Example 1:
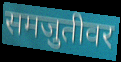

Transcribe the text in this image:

समजुतीवर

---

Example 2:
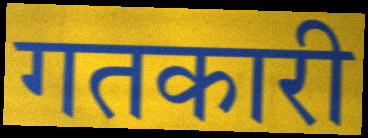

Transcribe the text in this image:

गतकारी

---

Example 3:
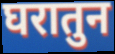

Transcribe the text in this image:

घरातुन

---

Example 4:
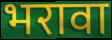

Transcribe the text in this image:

भरावा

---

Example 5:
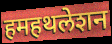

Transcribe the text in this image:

हमहथलेशन